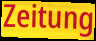
Zeitung